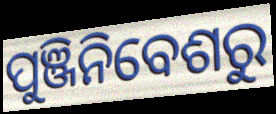
ପୁଞ୍ଜିନିବେଶରୁ